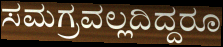
ಸಮಗ್ರವಲ್ಲದಿದ್ದರೂ